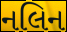
નલિન